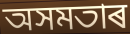
অসমতাৰ